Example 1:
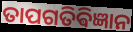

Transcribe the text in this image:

ତାପଗତିଵିଜ୍ଞାନ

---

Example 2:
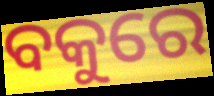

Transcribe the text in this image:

ବକୁରେ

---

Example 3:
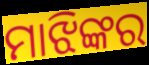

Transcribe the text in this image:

ମାଝିଙ୍କର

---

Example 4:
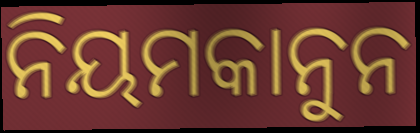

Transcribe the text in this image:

ନିୟମକାନୁନ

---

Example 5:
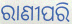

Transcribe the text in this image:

ରାଣୀପରି